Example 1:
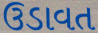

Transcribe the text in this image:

ઉડાવત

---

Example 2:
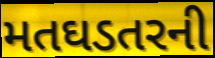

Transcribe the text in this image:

મતઘડતરની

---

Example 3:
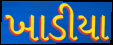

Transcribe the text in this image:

ખાડીયા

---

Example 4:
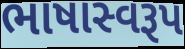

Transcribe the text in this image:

ભાષાસ્વરૂપ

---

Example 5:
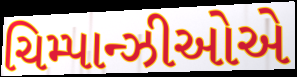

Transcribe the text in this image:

ચિમ્પાન્ઝીઓએ